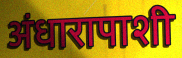
अंधारापाशी